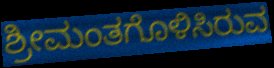
ಶ್ರೀಮಂತಗೊಳಿಸಿರುವ